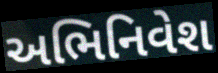
અભિનિવેશ